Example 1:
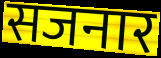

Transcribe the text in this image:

सजनार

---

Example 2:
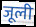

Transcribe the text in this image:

जूली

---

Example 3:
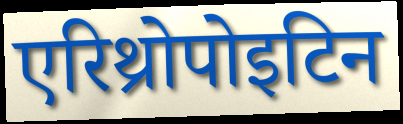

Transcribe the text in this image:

एरिथ्रोपोइटिन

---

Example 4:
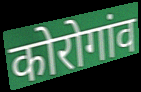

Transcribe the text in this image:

कोरोगांव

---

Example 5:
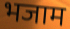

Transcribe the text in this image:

भजाम